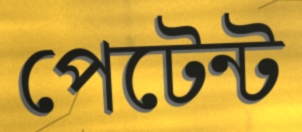
পেটেন্ট